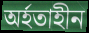
অৰ্হতাহীন